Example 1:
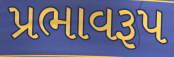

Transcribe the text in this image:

પ્રભાવરૂપ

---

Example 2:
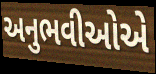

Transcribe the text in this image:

અનુભવીઓએ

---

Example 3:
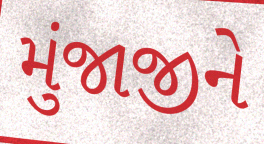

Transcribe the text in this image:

મુંજાજીને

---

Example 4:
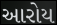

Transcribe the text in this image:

આરોય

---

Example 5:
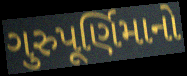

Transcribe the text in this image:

ગુરુપૂર્ણિમાનો